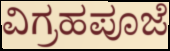
ವಿಗ್ರಹಪೂಜೆ